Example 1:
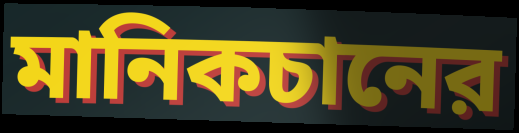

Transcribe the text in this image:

মানিকচানের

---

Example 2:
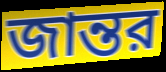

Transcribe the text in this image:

জান্তর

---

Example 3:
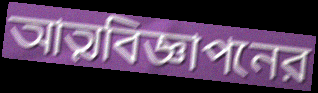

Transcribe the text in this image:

আত্মবিজ্ঞাপনের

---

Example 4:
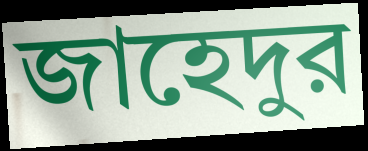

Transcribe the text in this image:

জাহেদুর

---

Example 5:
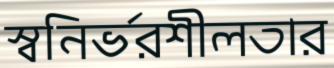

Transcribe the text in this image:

স্বনির্ভরশীলতার